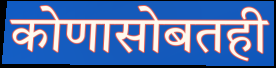
कोणासोबतही